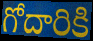
గోదారికి